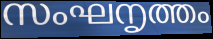
സംഘനൃത്തം